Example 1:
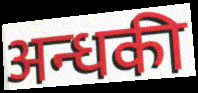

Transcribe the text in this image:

अन्धकी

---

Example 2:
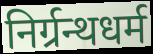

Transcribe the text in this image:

निर्ग्रन्थधर्म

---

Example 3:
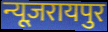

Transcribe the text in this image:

न्यूज़रायपुर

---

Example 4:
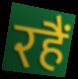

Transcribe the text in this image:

रहैं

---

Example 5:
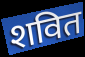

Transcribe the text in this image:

शवित